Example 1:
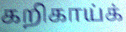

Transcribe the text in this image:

கறிகாய்க்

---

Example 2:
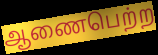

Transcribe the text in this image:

ஆணைபெற்ற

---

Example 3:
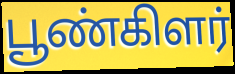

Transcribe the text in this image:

பூண்கிளர்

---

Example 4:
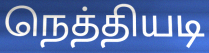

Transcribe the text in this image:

நெத்தியடி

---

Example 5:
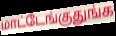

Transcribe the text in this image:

மாட்டேங்குதுங்க